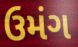
ઉમંગ